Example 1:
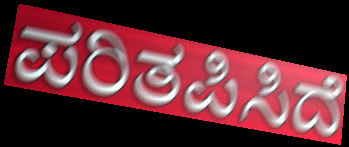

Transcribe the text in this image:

ಪರಿತಪಿಸಿದೆ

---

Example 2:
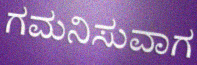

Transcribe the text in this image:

ಗಮನಿಸುವಾಗ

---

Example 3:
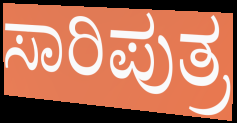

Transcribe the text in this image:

ಸಾರಿಪುತ್ರ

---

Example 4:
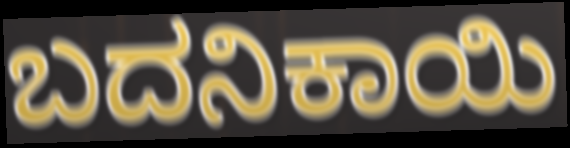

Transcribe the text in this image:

ಬದನಿಕಾಯಿ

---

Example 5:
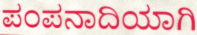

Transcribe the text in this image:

ಪಂಪನಾದಿಯಾಗಿ